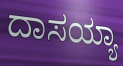
ದಾಸಯ್ಯಾ